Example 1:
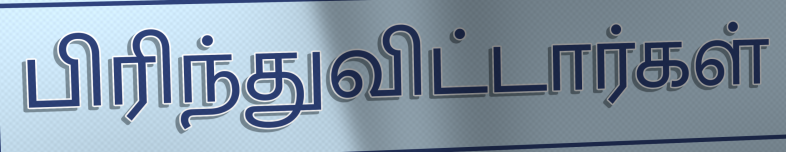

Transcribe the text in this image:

பிரிந்துவிட்டார்கள்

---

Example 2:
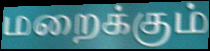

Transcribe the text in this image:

மறைக்கும்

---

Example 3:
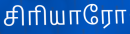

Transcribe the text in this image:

சிரியாரோ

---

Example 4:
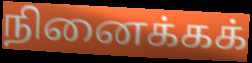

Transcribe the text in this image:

நினைக்கக்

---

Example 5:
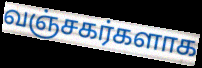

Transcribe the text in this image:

வஞ்சகர்களாக